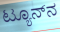
ಟ್ಯೂನ್‌ನ